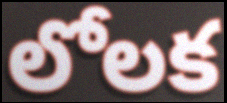
లోలక